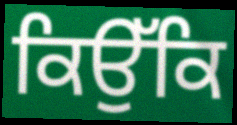
ਕਿਉੱਕਿ